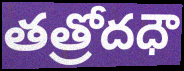
తత్రోదధౌ